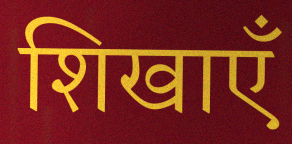
शिखाएँ